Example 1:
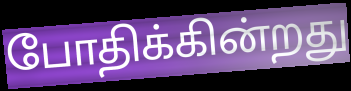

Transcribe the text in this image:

போதிக்கின்றது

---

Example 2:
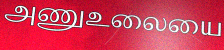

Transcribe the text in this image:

அணுஉலையை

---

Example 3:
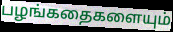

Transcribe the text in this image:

பழங்கதைகளையும்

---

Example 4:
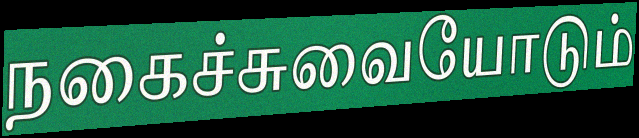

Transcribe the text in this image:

நகைச்சுவையோடும்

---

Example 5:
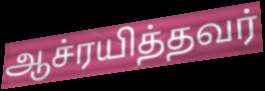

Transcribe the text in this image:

ஆச்ரயித்தவர்